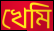
খেমি